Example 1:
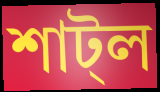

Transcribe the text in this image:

শাট্ল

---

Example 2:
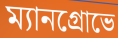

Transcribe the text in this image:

ম্যানগ্রোভে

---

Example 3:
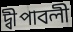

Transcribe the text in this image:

দ্বীপাবলী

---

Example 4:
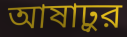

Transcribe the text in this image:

আষাঢ়ুর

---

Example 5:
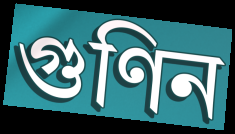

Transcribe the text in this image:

গুণিন